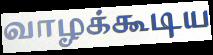
வாழக்கூடிய